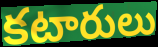
కటారులు